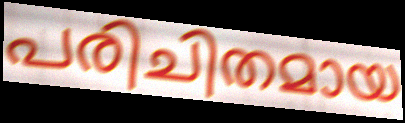
പരിചിതമായ